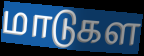
மாடுகள